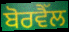
ਬੋਰਵੈੱਲ